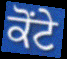
ਕੋਂਟੇ